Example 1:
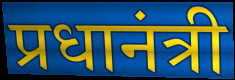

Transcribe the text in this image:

प्रधानंत्री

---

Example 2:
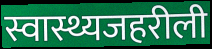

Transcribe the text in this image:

स्वास्थ्यजहरीली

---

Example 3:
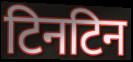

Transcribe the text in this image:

टिनटिन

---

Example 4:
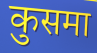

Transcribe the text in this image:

कुसमा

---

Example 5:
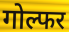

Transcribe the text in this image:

गोल्फर